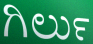
ಗಿರ್ಲು